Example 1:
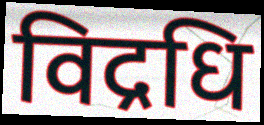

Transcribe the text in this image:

विद्रधि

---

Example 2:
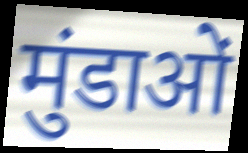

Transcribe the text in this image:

मुंडाओं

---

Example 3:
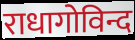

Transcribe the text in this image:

राधागोविन्द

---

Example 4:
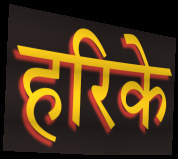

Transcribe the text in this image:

हरिके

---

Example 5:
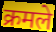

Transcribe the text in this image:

क्रमले